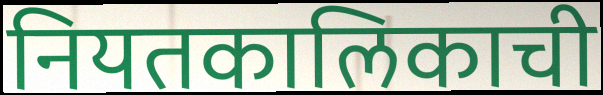
नियतकालिकाची